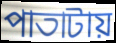
পাতাটায়